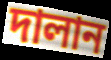
দালান